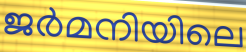
ജർമനിയിലെ